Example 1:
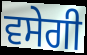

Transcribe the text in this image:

ਵਸੇਗੀ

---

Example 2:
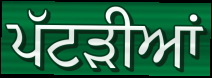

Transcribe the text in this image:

ਪੱਟੜੀਆਂ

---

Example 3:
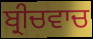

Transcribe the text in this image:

ਬ੍ਰੀਚਵਾਚ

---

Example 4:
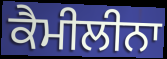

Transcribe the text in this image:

ਕੈਮੀਲੀਨਾ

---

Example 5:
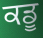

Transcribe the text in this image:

ਕਡੂ